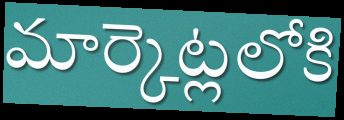
మార్కెట్లలోకి